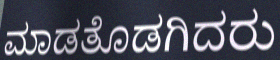
ಮಾಡತೊಡಗಿದರು